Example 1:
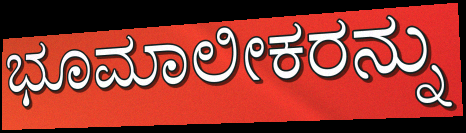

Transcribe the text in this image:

ಭೂಮಾಲೀಕರನ್ನು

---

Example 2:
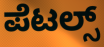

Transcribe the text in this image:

ಪೆಟಲ್ಸ್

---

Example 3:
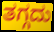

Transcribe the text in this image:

ತಗ್ಗದು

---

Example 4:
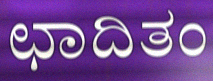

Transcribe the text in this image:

ಛಾದಿತಂ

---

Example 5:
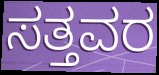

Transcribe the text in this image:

ಸತ್ತವರ